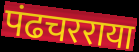
पंढचरराया